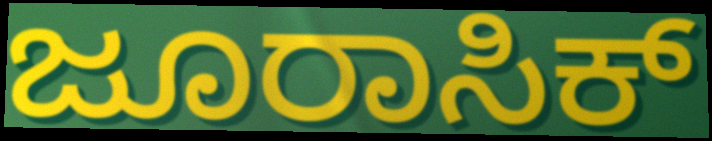
ಜೂರಾಸಿಕ್